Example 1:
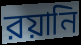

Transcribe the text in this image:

রয়ানি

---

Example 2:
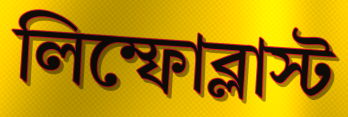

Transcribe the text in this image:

লিম্ফোব্লাস্ট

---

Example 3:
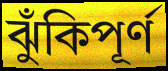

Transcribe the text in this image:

ঝুঁকিপূর্ণ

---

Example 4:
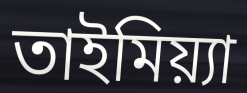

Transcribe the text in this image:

তাইমিয়্যা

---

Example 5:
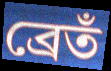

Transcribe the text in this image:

ব্রেতঁ